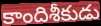
కాందిశీకుడు